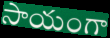
సాయంగా